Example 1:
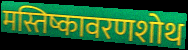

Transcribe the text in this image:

मस्तिष्कावरणशोथ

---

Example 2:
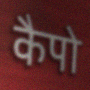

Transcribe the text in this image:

कैपो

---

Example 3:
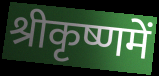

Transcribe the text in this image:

श्रीकृष्णमें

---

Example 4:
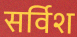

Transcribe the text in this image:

सर्विश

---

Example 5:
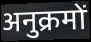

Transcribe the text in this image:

अनुक्रमों